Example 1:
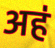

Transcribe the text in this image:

अह॑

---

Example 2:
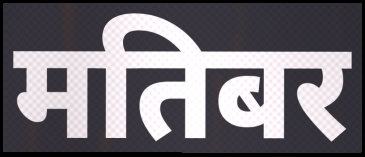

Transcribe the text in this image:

मतिबर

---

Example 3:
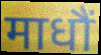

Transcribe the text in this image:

माधौं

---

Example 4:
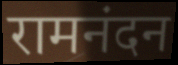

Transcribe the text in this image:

रामनंदन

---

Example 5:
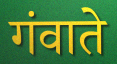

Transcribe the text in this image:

गंवाते